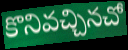
కొనివచ్చినచో